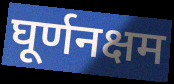
घूर्णनक्षम